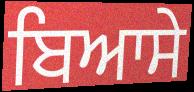
ਬਿਆਸੇ